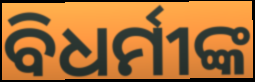
ବିଧର୍ମୀଙ୍କ